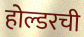
होल्डरची